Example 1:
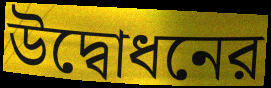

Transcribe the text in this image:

উদ্বোধনের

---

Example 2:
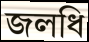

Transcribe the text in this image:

জলধি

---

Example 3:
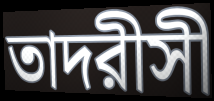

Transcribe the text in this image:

তাদরীসী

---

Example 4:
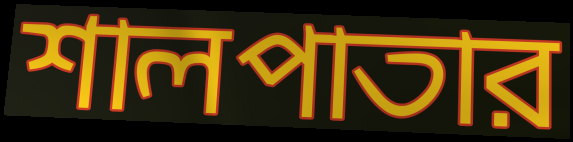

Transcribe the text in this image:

শালপাতার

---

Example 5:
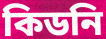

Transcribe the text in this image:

কিডনি